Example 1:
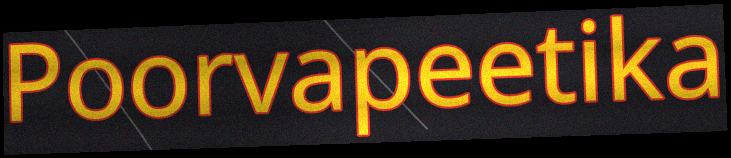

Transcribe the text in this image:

Poorvapeetika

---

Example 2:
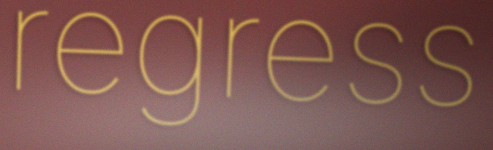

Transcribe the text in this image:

regress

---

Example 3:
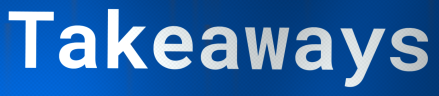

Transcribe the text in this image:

Takeaways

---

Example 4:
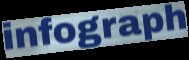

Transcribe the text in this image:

infograph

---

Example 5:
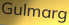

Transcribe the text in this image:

Gulmarg